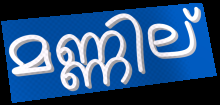
മണ്ണില്